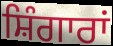
ਸ਼ਿੰਗਾਰਾਂ